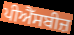
ਪੀਐੱਸਬੀਜ਼